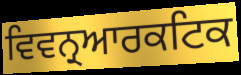
ਵਿਵਨ੍ਰਆਰਕਟਿਕ